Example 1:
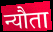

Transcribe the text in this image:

न्यौता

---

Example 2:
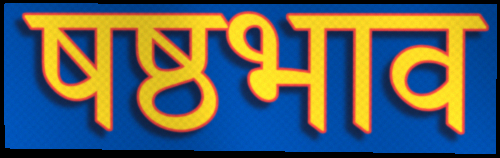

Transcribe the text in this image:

षष्ठभाव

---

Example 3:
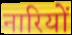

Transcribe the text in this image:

नारियों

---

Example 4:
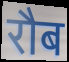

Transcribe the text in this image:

रौब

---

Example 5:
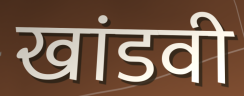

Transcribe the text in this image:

खांडवी